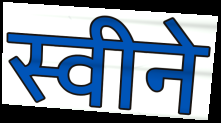
स्वीने